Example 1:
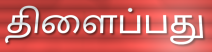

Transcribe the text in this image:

திளைப்பது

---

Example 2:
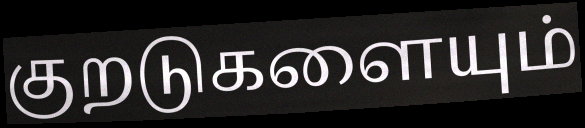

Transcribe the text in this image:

குறடுகளையும்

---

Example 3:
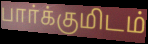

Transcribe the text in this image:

பார்க்குமிடம்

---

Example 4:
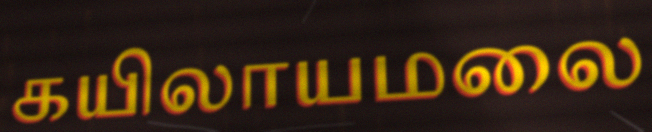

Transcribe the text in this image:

கயிலாயமலை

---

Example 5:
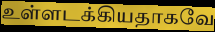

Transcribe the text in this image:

உள்ளடக்கியதாகவே